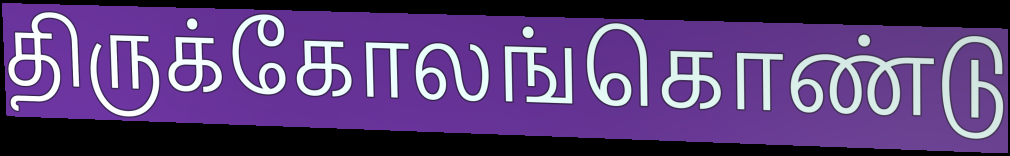
திருக்கோலங்கொண்டு